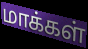
மாக்கள்